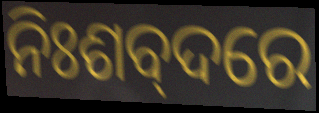
ନିଃଶବ୍‌ଦରେ